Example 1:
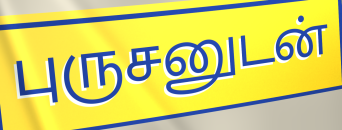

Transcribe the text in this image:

புருசனுடன்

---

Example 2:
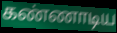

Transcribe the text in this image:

கண்ணாடிய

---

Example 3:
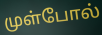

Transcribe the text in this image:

முள்போல்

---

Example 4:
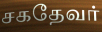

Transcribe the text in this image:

சகதேவர்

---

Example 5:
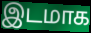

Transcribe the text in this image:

இடமாக